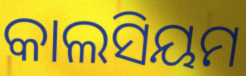
କାଲସିୟମ